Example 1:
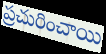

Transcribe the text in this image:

ప్రచురించాయి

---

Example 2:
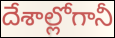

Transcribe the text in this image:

దేశాల్లోగానీ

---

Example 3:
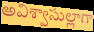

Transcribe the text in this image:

అవిశ్వాసుల్లాగా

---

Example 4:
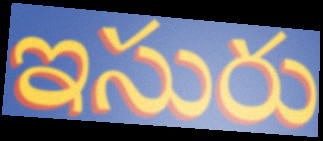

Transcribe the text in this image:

ఇసురు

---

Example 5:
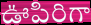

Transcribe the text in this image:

ఊపిరిగా